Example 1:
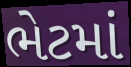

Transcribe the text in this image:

ભેટમાં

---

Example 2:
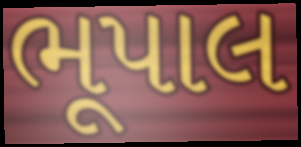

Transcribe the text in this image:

ભૂપાલ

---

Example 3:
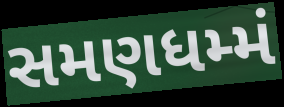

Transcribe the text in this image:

સમણધમ્મં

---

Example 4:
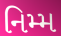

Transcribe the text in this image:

નિમ્મ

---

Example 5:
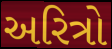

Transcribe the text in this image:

અરિત્રો